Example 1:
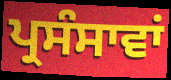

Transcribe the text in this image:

ਪ੍ਰਸੰਸਾਵਾਂ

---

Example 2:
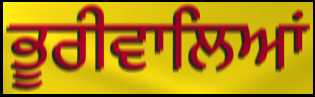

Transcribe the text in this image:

ਭੂਰੀਵਾਲਿਆਂ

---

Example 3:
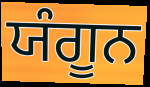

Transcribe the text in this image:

ਯੰਗੂਨ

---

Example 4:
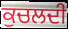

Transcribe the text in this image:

ਕੁਚਲਦੀ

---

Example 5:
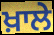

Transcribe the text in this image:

ਖ਼ਾਲੇ